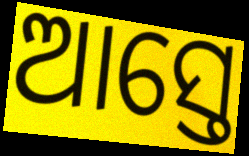
ଆସ୍ତେ